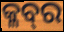
କ୍ଳବ୍‍ର